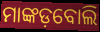
ମାଙ୍କଡ଼ବୋଲି